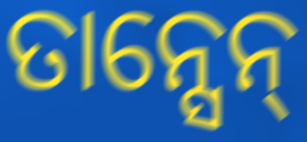
ତାନ୍ସେନ୍